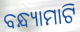
ବନ୍ଧ୍ୟାମାଟି